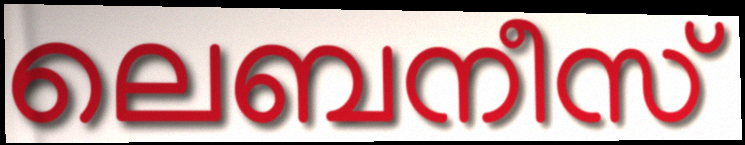
ലെബനീസ്